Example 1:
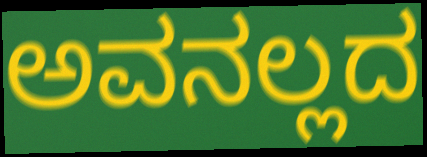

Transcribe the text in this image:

ಅವನಲ್ಲದ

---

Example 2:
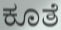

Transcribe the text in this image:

ಕೂತೆ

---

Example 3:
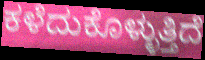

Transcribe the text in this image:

ಕಳೆದುಕೊಳ್ಳುತ್ತಿದೆ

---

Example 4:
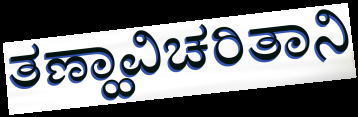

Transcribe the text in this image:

ತಣ್ಹಾವಿಚರಿತಾನಿ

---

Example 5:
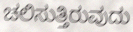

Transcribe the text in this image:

ಚಲಿಸುತ್ತಿರುವುದು